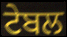
ਟੇਬਲ